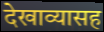
देखाव्यासह